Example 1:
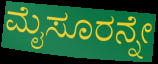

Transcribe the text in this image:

ಮೈಸೂರನ್ನೇ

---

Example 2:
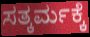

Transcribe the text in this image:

ಸತ್ಕರ್ಮಕ್ಕೆ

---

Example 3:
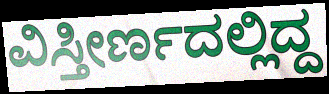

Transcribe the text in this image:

ವಿಸ್ತೀರ್ಣದಲ್ಲಿದ್ದ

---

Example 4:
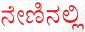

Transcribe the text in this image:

ನೇಣಿನಲ್ಲಿ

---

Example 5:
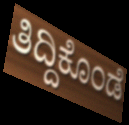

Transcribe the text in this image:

ತಿದ್ದಿಕೊಂಡೆ